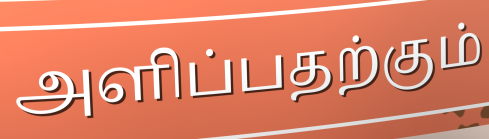
அளிப்பதற்கும்